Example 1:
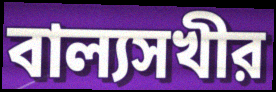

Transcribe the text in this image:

বাল্যসখীর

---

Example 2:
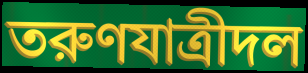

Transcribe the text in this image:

তরুণযাত্রীদল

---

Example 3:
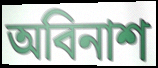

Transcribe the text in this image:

অবিনাশ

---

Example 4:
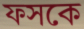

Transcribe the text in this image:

ফসকে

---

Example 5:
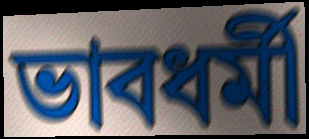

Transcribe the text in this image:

ভাবধর্মী